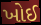
ખોઈ